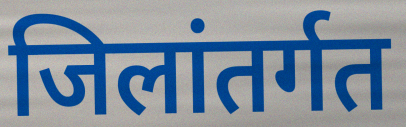
जिलांतर्गत